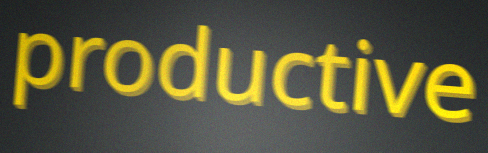
productive